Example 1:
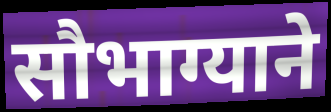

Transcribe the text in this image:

सौभाग्याने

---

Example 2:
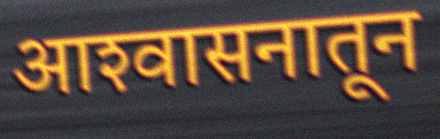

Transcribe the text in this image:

आश्वासनातून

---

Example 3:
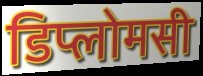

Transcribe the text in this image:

डिप्लोमसी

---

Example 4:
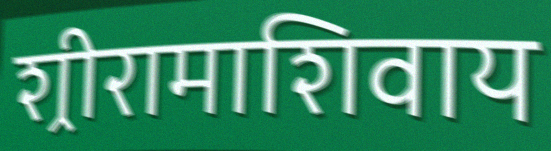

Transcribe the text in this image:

श्रीरामाशिवाय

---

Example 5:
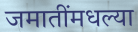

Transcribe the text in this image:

जमातींमधल्या